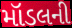
મૉડલની